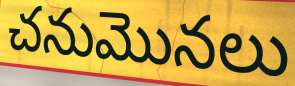
చనుమొనలు